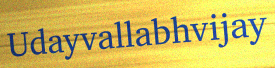
Udayvallabhvijay